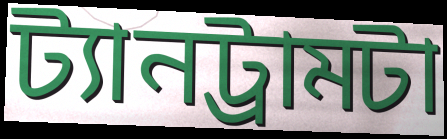
ট্যানট্রামটা